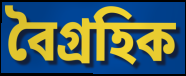
বৈগ্রহিক